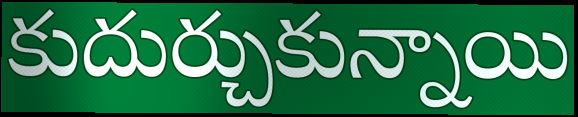
కుదుర్చుకున్నాయి